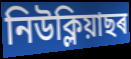
নিউক্লিয়াছৰ